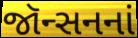
જૉન્સનનાં